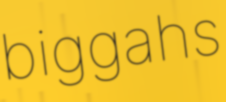
biggahs